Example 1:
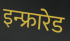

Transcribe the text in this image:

इन्फ्रारेड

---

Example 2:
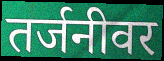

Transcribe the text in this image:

तर्जनीवर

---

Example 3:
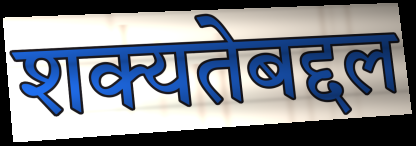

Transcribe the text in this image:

शक्यतेबद्दल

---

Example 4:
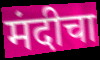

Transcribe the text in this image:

मंदीचा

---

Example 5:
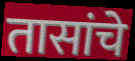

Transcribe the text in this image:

तासांचे